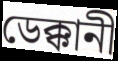
ডেক্কানী